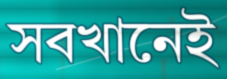
সবখানেই